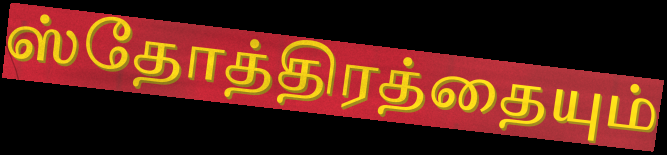
ஸ்தோத்திரத்தையும்